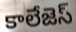
కాలేజెస్